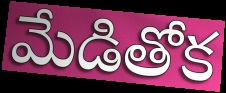
మేడితోక